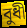
বুধী